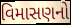
વિમાસણનો